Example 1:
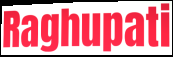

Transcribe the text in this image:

Raghupati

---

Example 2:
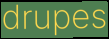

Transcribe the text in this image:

drupes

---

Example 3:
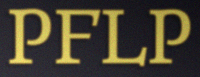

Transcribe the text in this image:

PFLP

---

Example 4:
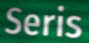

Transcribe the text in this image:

Seris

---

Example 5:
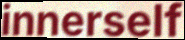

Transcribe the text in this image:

innerself